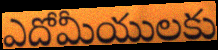
ఎదోమీయులకు